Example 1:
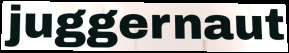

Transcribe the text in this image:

juggernaut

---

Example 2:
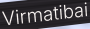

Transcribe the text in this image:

Virmatibai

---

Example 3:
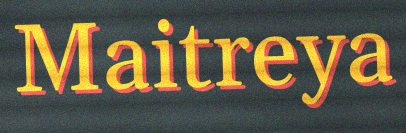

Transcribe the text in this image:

Maitreya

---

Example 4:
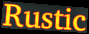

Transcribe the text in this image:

Rustic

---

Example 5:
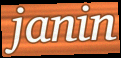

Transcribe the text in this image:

janin